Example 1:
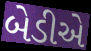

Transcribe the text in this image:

બેડીએ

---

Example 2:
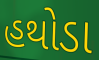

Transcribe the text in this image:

હથોડા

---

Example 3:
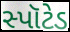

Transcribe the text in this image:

સ્પૉટેડ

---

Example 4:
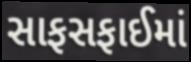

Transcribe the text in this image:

સાફસફાઈમાં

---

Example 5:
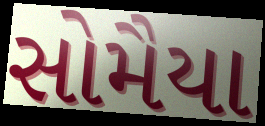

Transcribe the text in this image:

સોમૈયા